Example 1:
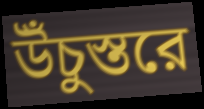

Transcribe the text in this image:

উঁচুস্তরে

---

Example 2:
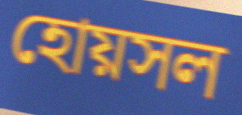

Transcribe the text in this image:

হোয়সল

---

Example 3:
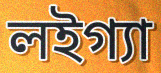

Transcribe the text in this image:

লইগ্যা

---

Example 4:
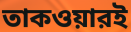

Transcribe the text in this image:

তাকওয়ারই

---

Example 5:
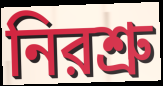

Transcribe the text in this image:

নিরশ্রু